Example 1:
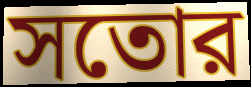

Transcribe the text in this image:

সতোর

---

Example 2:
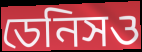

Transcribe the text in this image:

ডেনিসও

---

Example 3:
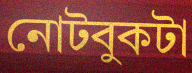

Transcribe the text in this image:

নোটবুকটা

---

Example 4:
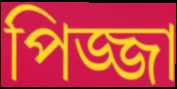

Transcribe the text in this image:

পিজ্জা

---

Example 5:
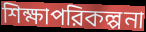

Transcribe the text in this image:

শিক্ষাপরিকল্পনা